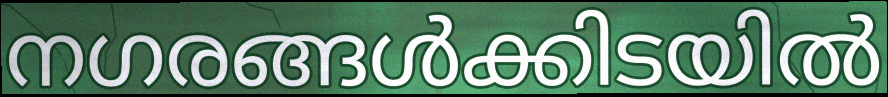
നഗരങ്ങൾക്കിടയിൽ